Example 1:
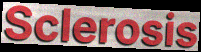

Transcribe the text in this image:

Sclerosis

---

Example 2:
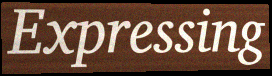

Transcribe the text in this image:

Expressing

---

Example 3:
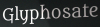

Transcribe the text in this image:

Glyphosate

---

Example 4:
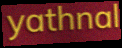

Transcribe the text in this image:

yathnal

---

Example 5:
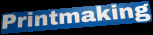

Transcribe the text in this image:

Printmaking